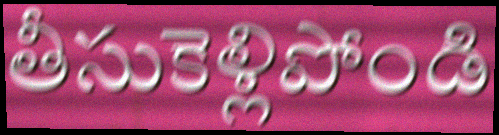
తీసుకెళ్లిపోండి